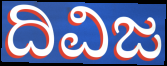
ದಿವಿಜ